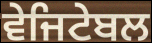
ਵੇਜਿਟੇਬਲ